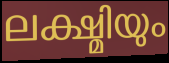
ലക്ഷ്മിയും